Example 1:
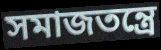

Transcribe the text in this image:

সমাজতন্ত্রে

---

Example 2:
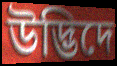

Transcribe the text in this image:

উদ্ভিদে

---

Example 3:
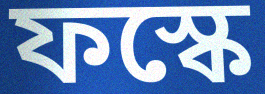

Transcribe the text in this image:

ফস্কে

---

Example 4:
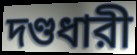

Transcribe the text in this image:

দণ্ডধারী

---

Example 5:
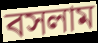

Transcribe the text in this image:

বসলাম